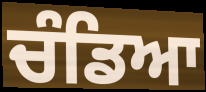
ਚੰਡਿਆ